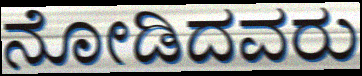
ನೋಡಿದವರು